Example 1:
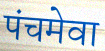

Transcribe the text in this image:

पंचमेवा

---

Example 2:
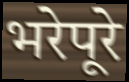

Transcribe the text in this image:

भरेपूरे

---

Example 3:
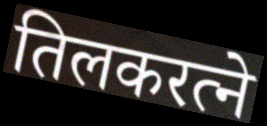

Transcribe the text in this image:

तिलकरत्ने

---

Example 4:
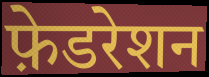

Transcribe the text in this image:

फ़ेडरेशन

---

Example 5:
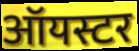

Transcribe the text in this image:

ऑयस्टर